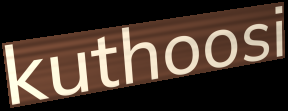
kuthoosi